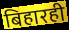
बिहारही